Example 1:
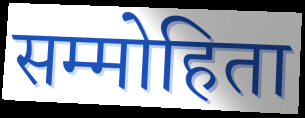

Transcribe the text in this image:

सम्मोहिता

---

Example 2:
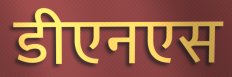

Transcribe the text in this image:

डीएनएस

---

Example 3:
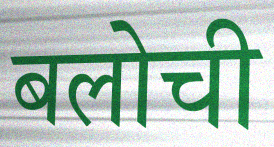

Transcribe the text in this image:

बलोची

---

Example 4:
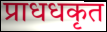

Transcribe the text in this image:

प्राधधकृत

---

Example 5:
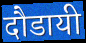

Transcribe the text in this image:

दौडायी